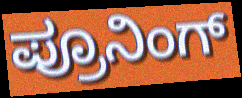
ಪ್ರೂನಿಂಗ್